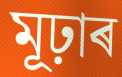
মূঢ়াৰ